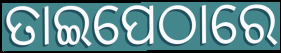
ତାଇପେଠାରେ